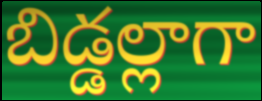
బిడ్డల్లాగా